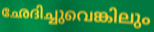
ഛേദിച്ചുവെങ്കിലും